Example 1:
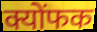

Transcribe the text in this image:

क्योंफक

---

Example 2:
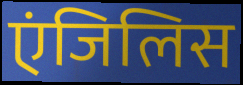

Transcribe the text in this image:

एंजिलिस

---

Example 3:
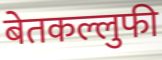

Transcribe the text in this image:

बेतकल्लुफी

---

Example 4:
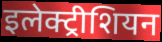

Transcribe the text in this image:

इलेक्ट्रीशियन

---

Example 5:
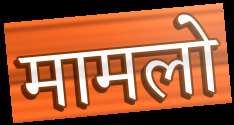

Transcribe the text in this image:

मामलो